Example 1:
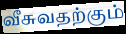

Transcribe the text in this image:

வீசுவதற்கும்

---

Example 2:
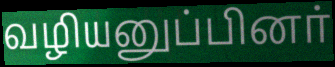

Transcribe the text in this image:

வழியனுப்பினர்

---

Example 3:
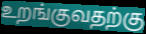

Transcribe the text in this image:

உறங்குவதற்கு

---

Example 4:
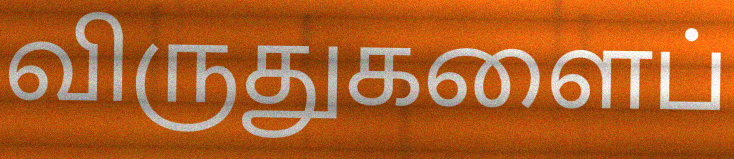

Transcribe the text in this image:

விருதுகளைப்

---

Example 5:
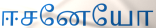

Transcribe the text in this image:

ஈசனேயோ